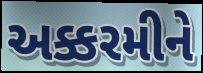
અક્કરમીને